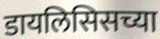
डायलिसिसच्या